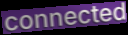
connected